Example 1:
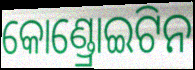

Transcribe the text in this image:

କୋଣ୍ଡ୍ରୋଇଟିନ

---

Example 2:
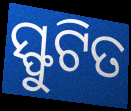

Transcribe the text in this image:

ସ୍ଫୁଟିତ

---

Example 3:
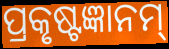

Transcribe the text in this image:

ପ୍ରକୃଷ୍ଟଜ୍ଞାନମ୍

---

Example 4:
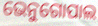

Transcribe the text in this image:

ଭେନୁଗୋପାଲ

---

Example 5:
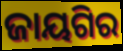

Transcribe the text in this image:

ଜାୟଗିର